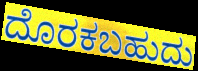
ದೊರಕಬಹುದು